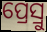
ପ୍ରେସ୍ରୁ